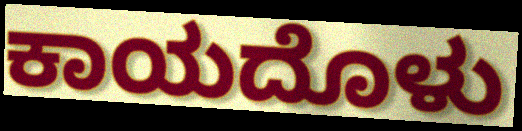
ಕಾಯದೊಳು